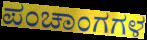
ಪಂಚಾಂಗಗಳ